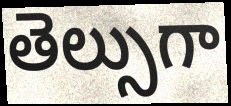
తెల్సుగా